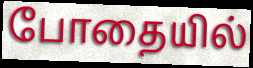
போதையில்